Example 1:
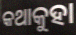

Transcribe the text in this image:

କଥାକୁହା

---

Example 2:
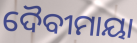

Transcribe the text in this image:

ଦୈବୀମାୟା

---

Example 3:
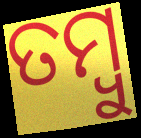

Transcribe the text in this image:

ତମ୍ବୁ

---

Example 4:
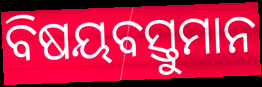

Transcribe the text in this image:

ବିଷୟବସ୍ତୁମାନ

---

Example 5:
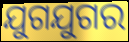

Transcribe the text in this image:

ଯୁଗଯୁଗର